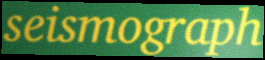
seismograph